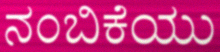
ನಂಬಿಕೆಯು